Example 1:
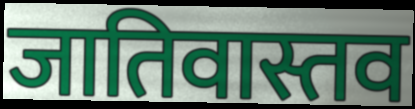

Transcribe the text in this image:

जातिवास्तव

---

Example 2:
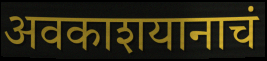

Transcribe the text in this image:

अवकाशयानाचं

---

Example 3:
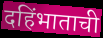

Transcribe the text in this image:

दहिंभाताची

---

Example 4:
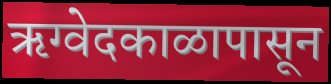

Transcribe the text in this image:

ऋग्वेदकाळापासून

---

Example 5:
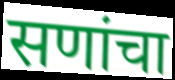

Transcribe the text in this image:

सणांचा